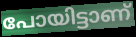
പോയിട്ടാണ്